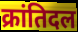
क्रांतिदल